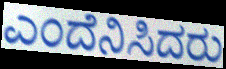
ಎಂದೆನಿಸಿದರು